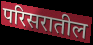
परिसरातील